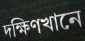
দক্ষিণখানে